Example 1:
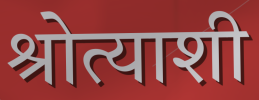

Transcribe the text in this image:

श्रोत्याशी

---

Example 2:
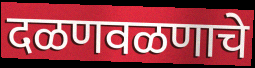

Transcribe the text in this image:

दळणवळणाचे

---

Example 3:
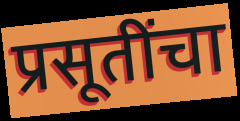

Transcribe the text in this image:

प्रसूतींचा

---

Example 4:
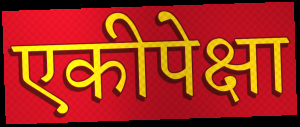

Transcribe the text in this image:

एकीपेक्षा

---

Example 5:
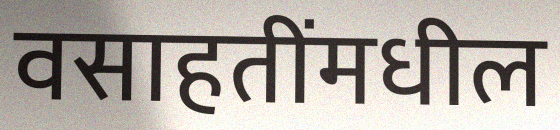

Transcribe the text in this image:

वसाहतींमधील